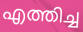
എത്തിച്ച